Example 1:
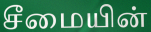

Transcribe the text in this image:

சீமையின்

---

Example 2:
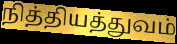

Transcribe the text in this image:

நித்தியத்துவம்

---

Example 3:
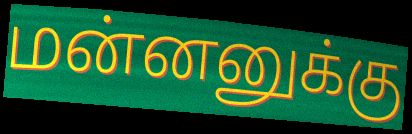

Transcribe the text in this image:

மன்னனுக்கு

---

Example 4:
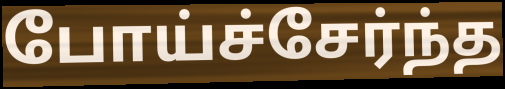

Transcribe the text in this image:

போய்ச்சேர்ந்த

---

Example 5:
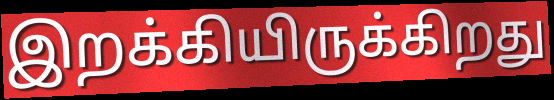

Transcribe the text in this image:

இறக்கியிருக்கிறது